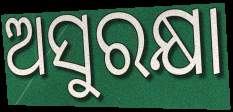
ଅସୁରକ୍ଷା